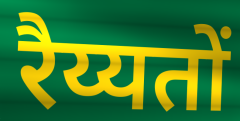
रैय्यतों